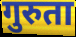
गुरुता